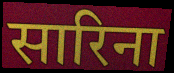
सारिना